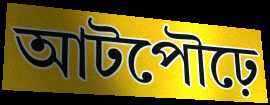
আটপৌঢ়ে